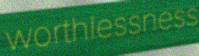
worthlessness